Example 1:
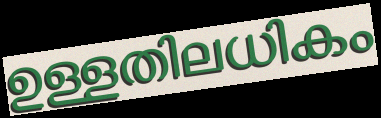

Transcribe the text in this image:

ഉള്ളതിലധികം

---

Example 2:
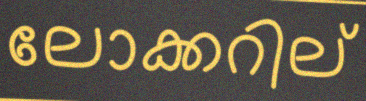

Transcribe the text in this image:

ലോക്കറില്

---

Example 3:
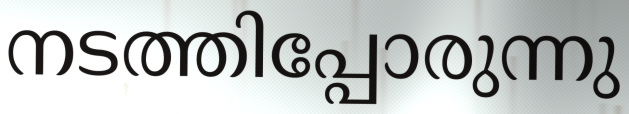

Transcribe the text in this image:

നടത്തിപ്പോരുന്നു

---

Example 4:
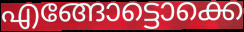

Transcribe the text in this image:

എങ്ങോട്ടൊക്കെ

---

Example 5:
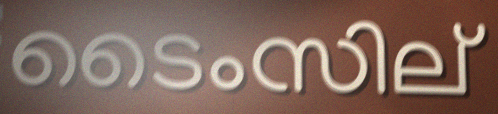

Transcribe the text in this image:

ടൈംസില്